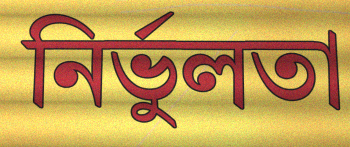
নির্ভুলতা